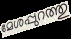
മേശപ്പുറത്തു